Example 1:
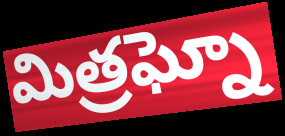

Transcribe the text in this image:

మిత్రఘ్నో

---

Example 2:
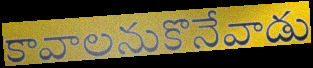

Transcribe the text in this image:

కావాలనుకొనేవాడు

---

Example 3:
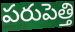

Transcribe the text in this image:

పరుపెత్తి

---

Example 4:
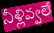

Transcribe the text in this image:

నీళ్లివ్వలే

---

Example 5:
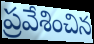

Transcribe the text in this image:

ప్రవేశించిన